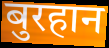
बुरहान